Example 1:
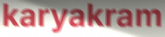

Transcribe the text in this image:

karyakram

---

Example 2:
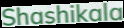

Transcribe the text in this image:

Shashikala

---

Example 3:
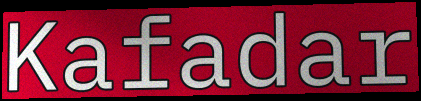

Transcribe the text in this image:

Kafadar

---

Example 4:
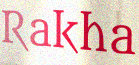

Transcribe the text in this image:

Rakha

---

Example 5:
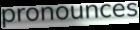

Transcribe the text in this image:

pronounces